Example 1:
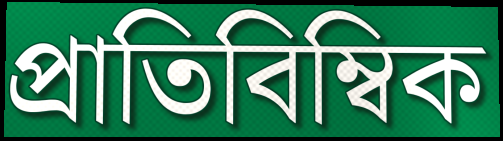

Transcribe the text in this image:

প্রাতিবিম্বিক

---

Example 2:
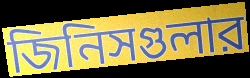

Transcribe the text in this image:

জিনিসগুলার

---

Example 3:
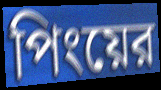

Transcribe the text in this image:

পিংয়ের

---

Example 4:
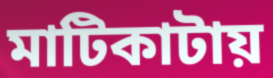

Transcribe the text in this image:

মাটিকাটায়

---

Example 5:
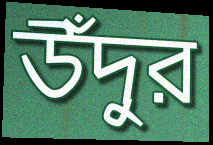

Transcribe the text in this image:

উঁদুর